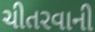
ચીતરવાની